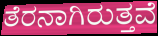
ತೆರನಾಗಿರುತ್ತವೆ